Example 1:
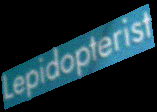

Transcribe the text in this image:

Lepidopterist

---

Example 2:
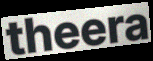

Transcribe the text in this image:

theera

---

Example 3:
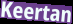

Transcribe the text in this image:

Keertan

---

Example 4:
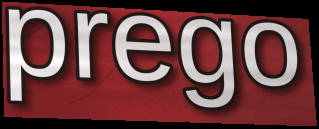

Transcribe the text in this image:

prego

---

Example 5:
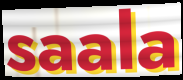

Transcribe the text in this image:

saala